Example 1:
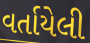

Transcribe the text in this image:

વર્તાયેલી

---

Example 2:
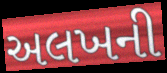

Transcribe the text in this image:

અલખની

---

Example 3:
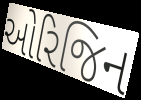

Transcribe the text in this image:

ઓરિજિન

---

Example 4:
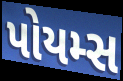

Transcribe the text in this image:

પોયમ્સ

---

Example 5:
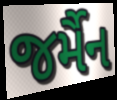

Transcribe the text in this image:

જર્મૈન